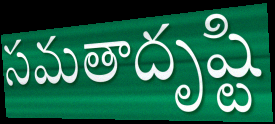
సమతాదృష్టి